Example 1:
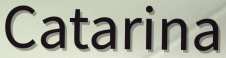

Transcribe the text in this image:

Catarina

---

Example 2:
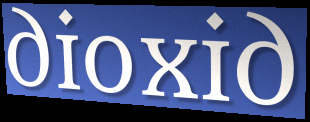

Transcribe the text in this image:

dioxid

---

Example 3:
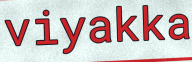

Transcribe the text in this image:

viyakka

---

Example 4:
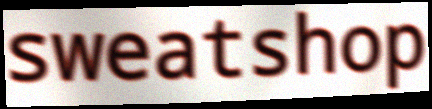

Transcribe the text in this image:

sweatshop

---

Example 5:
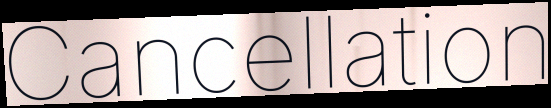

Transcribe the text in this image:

Cancellation